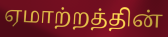
ஏமாற்றத்தின்